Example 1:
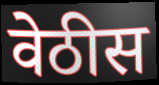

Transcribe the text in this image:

वेठीस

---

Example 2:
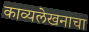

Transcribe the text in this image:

काव्यलेखनाचा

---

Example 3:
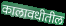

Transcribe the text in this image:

कालावधीतील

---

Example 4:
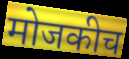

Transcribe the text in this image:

मोजकीच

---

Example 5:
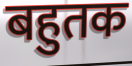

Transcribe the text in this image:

बहुतक